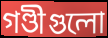
গণ্ডীগুলো